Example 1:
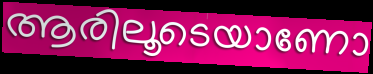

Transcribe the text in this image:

ആരിലൂടെയാണോ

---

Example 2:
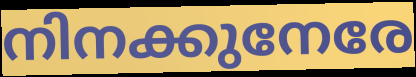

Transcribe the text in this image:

നിനക്കുനേരേ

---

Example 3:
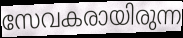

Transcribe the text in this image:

സേവകരായിരുന്ന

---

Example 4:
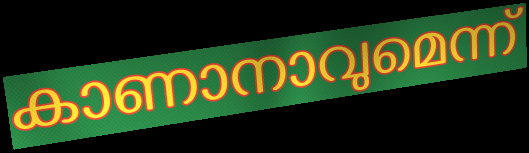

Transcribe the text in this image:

കാണാനാവുമെന്ന്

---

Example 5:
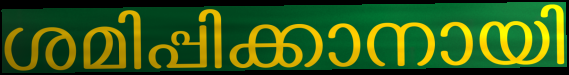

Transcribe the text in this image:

ശമിപ്പിക്കാനായി